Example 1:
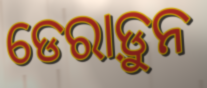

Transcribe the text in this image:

ଡେରାଡ଼ୁନ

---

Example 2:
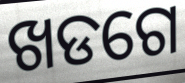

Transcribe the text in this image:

ଖଡଗେ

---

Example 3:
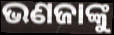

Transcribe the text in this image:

ଭଣଜାଙ୍କୁ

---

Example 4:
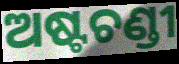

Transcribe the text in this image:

ଅଷ୍ଟଚଣ୍ଡୀ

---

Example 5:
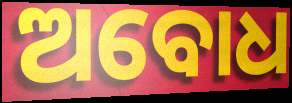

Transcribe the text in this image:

ଅବୋଧ